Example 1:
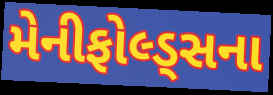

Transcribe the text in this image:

મેનીફોલ્ડ્સના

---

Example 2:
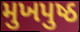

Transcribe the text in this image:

મુખપુષ્ઠ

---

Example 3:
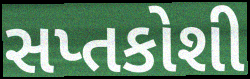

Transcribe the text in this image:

સપ્તકોશી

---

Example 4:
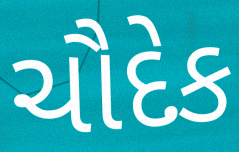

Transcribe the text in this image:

ચૌદેક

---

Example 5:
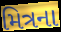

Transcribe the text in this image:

મિત્રના